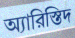
অ্যারিস্তিদ